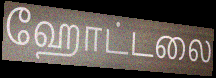
ஹோட்டலை